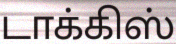
டாக்கிஸ்